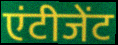
एंटीजेंट